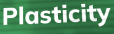
Plasticity